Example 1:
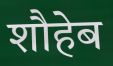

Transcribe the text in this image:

शौहेब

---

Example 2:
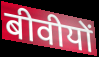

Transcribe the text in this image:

बीवीयों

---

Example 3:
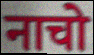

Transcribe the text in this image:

नाचो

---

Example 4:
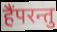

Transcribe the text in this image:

हैंपरन्तु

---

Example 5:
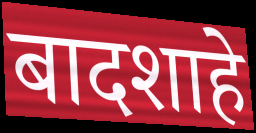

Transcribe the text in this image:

बादशाहे